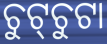
ଚୁଟ୍‌ଚୁଟା